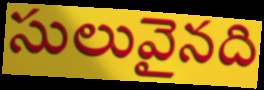
సులువైనది